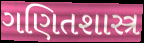
ગણિતશાસ્ત્ર